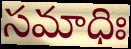
సమాధిః